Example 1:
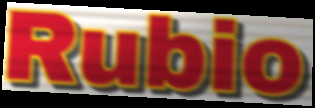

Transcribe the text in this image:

Rubio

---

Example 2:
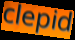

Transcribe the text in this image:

clepid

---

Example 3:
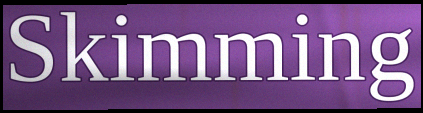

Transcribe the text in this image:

Skimming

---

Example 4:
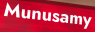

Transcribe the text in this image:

Munusamy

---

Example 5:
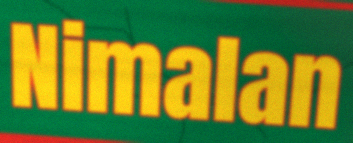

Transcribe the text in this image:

Nimalan